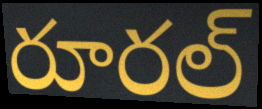
రూరల్